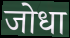
जोधा